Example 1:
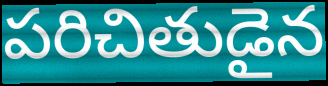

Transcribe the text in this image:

పరిచితుడైన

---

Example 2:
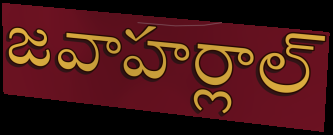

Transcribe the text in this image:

జవాహర్లాల్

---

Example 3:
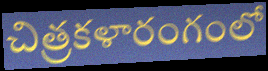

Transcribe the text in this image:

చిత్రకళారంగంలో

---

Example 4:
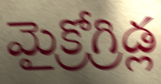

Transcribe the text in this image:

మైక్రోగ్రిడ్ల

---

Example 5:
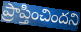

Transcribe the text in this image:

ప్రాప్తించిందని